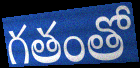
గతంతో